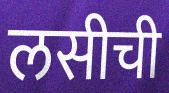
लसीची